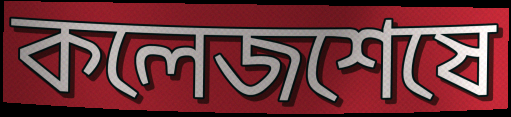
কলেজশেষে